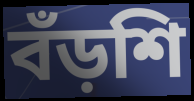
বঁড়শি